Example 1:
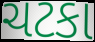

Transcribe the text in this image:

ચટકા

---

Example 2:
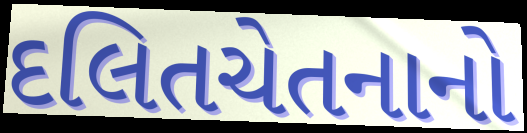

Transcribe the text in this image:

દલિતચેતનાનો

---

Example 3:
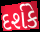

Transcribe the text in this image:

દર્શકે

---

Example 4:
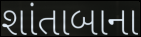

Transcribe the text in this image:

શાંતાબાના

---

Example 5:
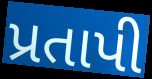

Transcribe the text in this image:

પ્રતાપી